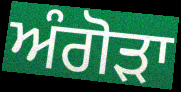
ਅੰਗੋੜਾ